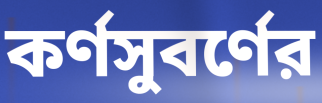
কর্ণসুবর্ণের